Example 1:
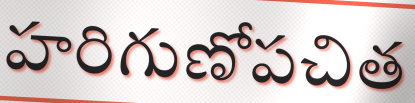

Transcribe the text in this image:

హరిగుణోపచిత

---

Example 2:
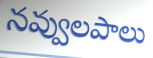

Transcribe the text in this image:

నవ్వులపాలు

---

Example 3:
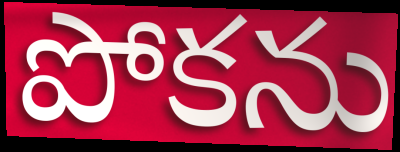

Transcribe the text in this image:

పోకను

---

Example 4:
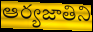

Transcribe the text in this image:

ఆర్యజాతిని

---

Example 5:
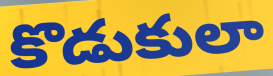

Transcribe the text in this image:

కొడుకులా